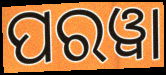
ପରୱା